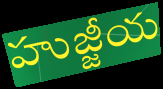
హుజ్జీయ